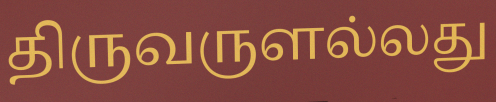
திருவருளல்லது